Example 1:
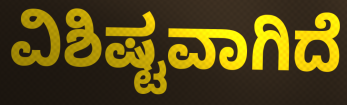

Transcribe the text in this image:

ವಿಶಿಷ್ಟವಾಗಿದೆ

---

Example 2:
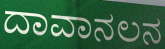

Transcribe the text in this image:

ದಾವಾನಲನ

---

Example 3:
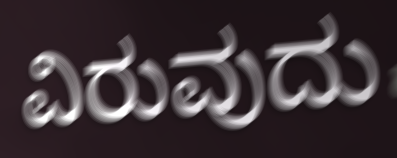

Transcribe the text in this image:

ವಿರುವುದು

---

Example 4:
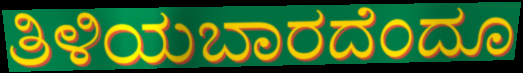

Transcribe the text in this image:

ತಿಳಿಯಬಾರದೆಂದೂ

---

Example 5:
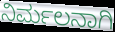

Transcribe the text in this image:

ನಿರ್ಮಲನಾಗಿ